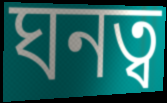
ঘনত্ব